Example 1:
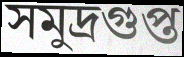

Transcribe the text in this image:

সমুদ্রগুপ্ত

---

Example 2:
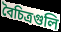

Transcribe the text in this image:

বৈচিত্রগুলি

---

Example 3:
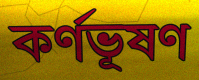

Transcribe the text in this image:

কর্ণভূষণ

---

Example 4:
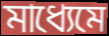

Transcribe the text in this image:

মাধ্যেমে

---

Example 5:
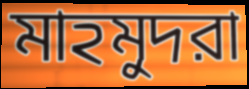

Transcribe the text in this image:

মাহমুদরা